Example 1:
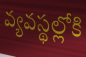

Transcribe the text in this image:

వ్యవస్థల్లోకి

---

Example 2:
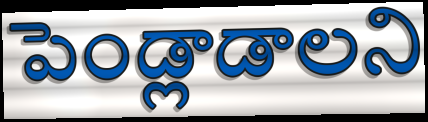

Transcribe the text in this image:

పెండ్లాడాలని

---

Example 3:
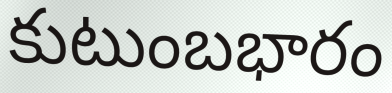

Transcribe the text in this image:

కుటుంబభారం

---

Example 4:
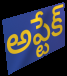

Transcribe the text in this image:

అప్టేక్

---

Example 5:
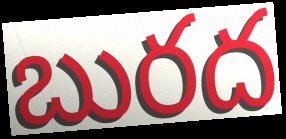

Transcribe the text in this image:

బురద